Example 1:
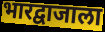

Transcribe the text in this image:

भारद्वाजाला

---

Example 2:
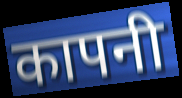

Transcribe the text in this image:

कापनी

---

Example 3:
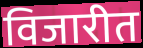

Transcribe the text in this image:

विजारीत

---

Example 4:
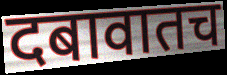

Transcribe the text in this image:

दबावातच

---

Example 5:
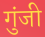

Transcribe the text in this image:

गुंजी